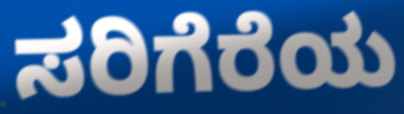
ಸರಿಗೆರೆಯ